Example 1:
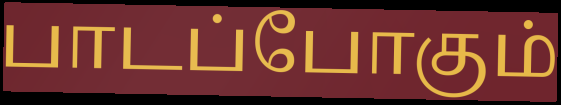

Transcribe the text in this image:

பாடப்போகும்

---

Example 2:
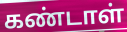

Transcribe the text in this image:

கண்டாள்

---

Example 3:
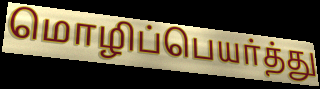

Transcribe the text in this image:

மொழிப்பெயர்த்து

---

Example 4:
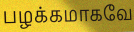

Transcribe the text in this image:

பழக்கமாகவே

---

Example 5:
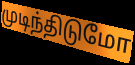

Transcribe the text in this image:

முடிந்திடுமோ